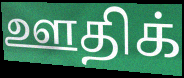
ஊதிக்